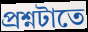
প্রশ্নটাতে